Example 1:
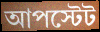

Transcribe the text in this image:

আপস্টেট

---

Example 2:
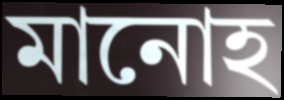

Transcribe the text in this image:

মানোহ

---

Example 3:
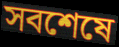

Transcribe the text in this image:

সবশেষে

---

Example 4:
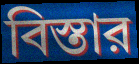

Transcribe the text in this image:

বিস্তার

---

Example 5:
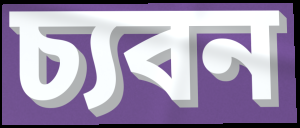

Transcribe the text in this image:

চ্যবন